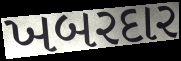
ખબરદાર